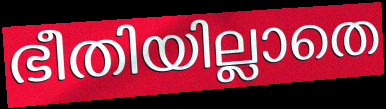
ഭീതിയില്ലാതെ